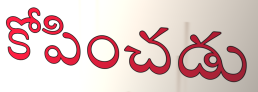
కోపించడు